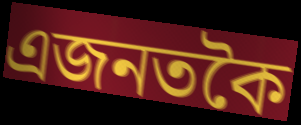
এজনতকৈ